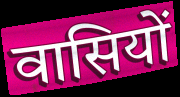
वासियों